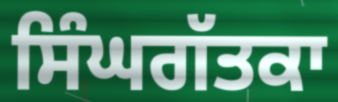
ਸਿੰਘਗੱਤਕਾ